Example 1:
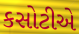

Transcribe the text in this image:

કસોટીએ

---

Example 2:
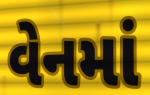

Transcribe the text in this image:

વેનમાં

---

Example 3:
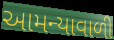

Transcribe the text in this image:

આમન્યાવાળી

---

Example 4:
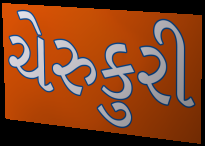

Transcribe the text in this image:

ચેરુકુરી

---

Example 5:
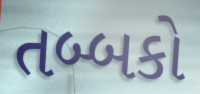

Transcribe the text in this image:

તબ્બકો